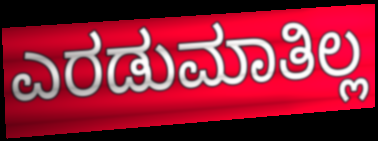
ಎರಡುಮಾತಿಲ್ಲ